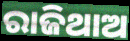
ରାଜିଥାଅ